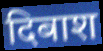
दिबाश